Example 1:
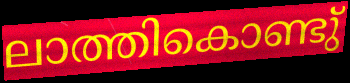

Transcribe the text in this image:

ലാത്തികൊണ്ടു്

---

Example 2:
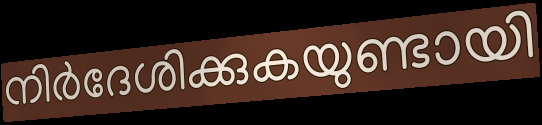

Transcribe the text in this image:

നിർദേശിക്കുകയുണ്ടായി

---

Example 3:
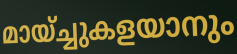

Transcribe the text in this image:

മായ്ച്ചുകളയാനും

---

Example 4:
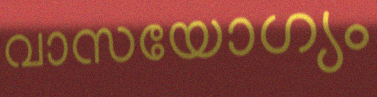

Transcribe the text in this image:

വാസയോഗ്യം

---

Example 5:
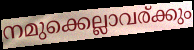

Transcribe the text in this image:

നമുക്കെല്ലാവര്ക്കും